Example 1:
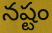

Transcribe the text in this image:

నష్టం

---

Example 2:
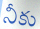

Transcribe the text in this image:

నీకు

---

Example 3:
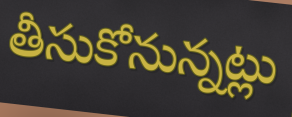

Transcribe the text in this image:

తీసుకోనున్నట్లు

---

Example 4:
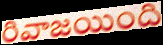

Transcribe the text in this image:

రివాజయింది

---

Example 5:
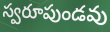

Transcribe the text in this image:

స్వరూపుండవు